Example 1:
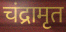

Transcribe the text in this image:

चंद्रामृत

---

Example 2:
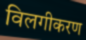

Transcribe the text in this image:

विलगीकरण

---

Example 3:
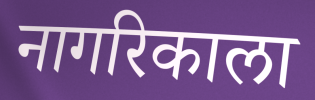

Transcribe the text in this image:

नागरिकाला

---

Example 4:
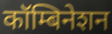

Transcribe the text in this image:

कॉम्बिनेशन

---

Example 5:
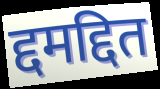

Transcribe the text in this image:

द्दमद्दित